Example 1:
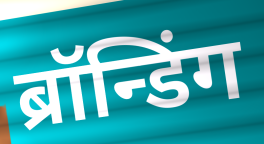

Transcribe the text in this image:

ब्रॉन्डिंग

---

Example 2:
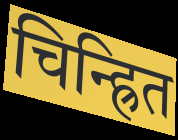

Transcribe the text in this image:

चिन्ह्रित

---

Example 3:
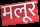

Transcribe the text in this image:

मलूर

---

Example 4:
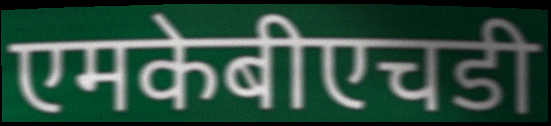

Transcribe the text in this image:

एमकेबीएचडी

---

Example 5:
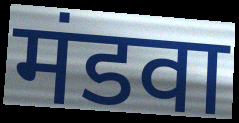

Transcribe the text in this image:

मंडवा